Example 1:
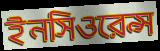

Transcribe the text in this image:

ইনসিওরেন্স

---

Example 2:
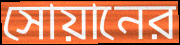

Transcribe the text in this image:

সোয়ানের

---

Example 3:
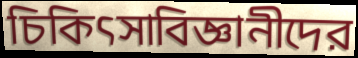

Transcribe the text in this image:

চিকিৎসাবিজ্ঞানীদের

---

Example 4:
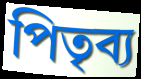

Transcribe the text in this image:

পিতৃব্য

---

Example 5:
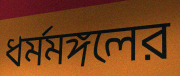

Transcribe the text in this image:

ধর্মমঙ্গলের